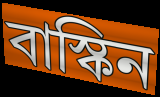
বাস্কিন